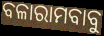
ବଳାରାମବାବୁ